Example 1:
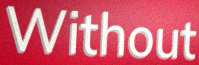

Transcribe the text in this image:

Without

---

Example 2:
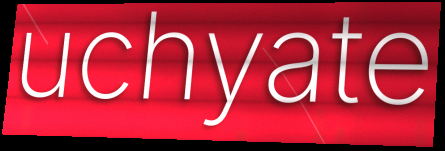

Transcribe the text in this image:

uchyate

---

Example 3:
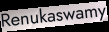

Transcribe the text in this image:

Renukaswamy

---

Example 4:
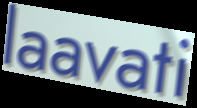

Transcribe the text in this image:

laavati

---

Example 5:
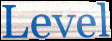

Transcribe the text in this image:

Level